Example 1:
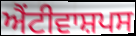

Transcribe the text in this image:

ਐਂਟੀਵਾਸ਼ਪਸ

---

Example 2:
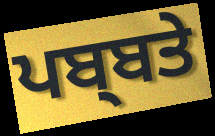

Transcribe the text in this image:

ਪਬ੍ਬਤੇ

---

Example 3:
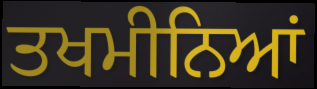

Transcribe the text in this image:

ਤਖਮੀਨਿਆਂ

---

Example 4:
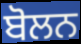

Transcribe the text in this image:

ਬੋਲਨ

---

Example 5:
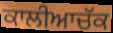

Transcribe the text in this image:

ਕਾਲੀਆਚੱਕ